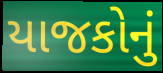
યાજકોનું